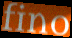
fino